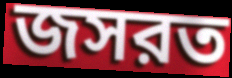
জসরত